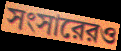
সংসারেরও